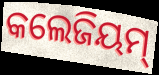
କଲେଜିୟମ୍